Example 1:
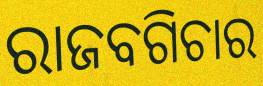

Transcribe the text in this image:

ରାଜବଗିଚାର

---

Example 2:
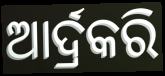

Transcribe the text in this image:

ଆର୍ଦ୍ରକରି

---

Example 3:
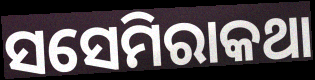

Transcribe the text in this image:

ସସେମିରାକଥା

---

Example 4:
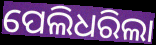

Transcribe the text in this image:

ପେଲିଧରିଲା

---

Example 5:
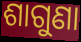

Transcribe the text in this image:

ଶାଗୁଣା